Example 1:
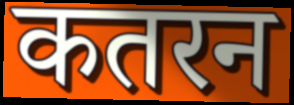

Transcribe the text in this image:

कतरन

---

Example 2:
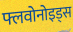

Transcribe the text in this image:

फ्लवोनोइड्स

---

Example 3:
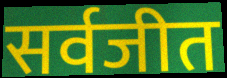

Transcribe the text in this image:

सर्वजीत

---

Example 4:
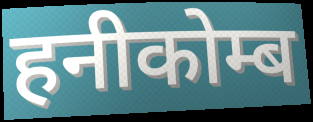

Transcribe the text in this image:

हनीकोम्ब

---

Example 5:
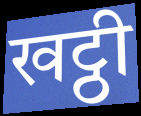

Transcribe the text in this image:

खट्ठी